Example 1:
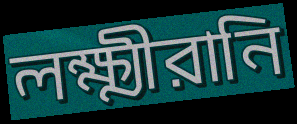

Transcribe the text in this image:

লক্ষ্মীরানি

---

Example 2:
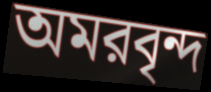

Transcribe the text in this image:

অমরবৃন্দ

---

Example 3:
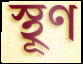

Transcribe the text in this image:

স্থূণ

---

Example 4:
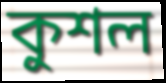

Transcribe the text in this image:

কুশল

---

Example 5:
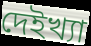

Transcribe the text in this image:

দেইখ্যা